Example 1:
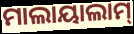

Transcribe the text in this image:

ମାଲାୟାଲାମ୍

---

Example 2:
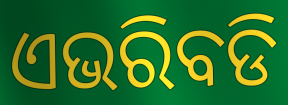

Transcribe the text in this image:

ଏଭରିବଡି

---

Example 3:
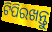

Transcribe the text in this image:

ଟିପିରଖନ୍ତୁ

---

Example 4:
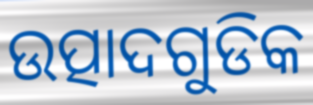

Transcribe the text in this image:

ଉତ୍ପାଦଗୁଡିକ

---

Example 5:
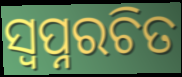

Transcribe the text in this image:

ସ୍ୱପ୍ନରଚିତ